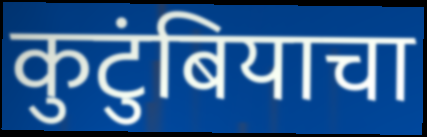
कुटुंबियाचा